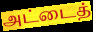
அட்டைத்